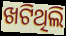
ଖଟିଥିଲି